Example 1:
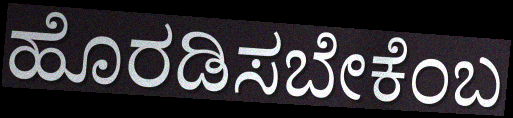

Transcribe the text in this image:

ಹೊರಡಿಸಬೇಕೆಂಬ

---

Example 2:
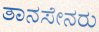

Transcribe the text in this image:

ತಾನಸೇನರು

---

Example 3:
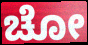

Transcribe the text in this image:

ಚೋ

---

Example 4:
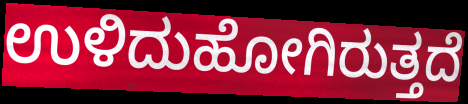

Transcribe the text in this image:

ಉಳಿದುಹೋಗಿರುತ್ತದೆ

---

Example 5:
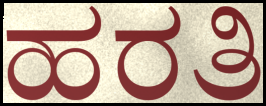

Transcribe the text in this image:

ಹರತಿ